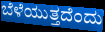
ಬೆಳೆಯುತ್ತದೆಂದು